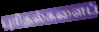
புரிதல்களைப்